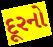
દૂરનો